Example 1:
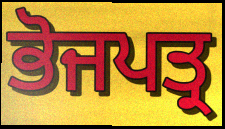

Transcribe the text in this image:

ਭੋਜਪਤ੍ਰ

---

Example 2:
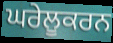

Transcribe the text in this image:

ਘਰੇਲੂਕਰਨ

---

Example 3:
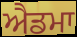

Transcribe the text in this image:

ਐਡਮਾ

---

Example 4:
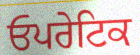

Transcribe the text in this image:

ਓਪਰੇਟਿਕ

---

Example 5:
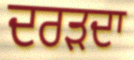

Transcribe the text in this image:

ਦਰੜਦਾ